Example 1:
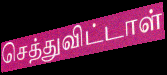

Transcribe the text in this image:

செத்துவிட்டாள்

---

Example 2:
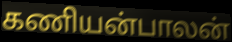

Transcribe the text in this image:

கணியன்பாலன்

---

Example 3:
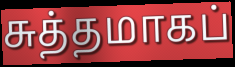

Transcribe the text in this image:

சுத்தமாகப்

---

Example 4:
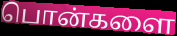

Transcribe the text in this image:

பொன்களை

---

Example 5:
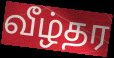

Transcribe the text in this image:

வீழ்தர